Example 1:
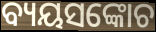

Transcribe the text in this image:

ବ୍ୟୟସଙ୍କୋଚ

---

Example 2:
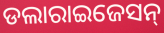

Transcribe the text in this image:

ଡଲାରାଇଜେସନ୍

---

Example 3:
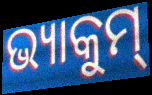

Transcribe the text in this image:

ଭ୍ୟାକୁମ୍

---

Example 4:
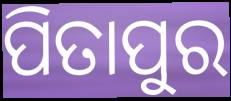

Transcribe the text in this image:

ପିତାପୁର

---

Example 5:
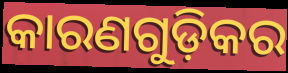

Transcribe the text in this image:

କାରଣଗୁଡ଼ିକର